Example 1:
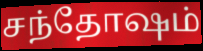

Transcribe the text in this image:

சந்தோஷம்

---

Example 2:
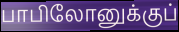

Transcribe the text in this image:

பாபிலோனுக்குப்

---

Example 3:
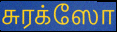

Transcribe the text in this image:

சுரக்ஸோ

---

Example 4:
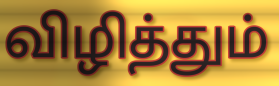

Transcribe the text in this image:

விழித்தும்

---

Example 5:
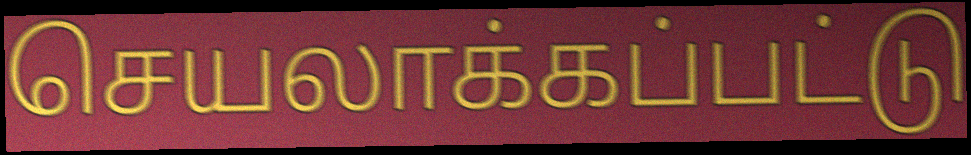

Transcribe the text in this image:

செயலாக்கப்பட்டு